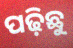
ପଢ଼ିଛୁ